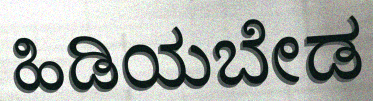
ಹಿಡಿಯಬೇಡ